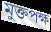
মুক্তপক্ষ